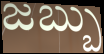
జబ్బు